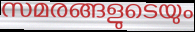
സമരങ്ങളുടെയും